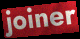
joiner